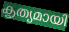
കൃത്യമായി